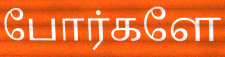
போர்களே